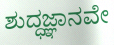
ಶುದ್ಧಜ್ಞಾನವೇ